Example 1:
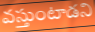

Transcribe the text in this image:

వస్తుంటాడని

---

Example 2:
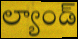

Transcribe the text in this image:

ల్యాండ్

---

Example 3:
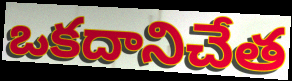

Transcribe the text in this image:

ఒకదానిచేత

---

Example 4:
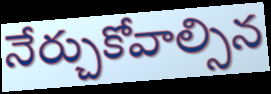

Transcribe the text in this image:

నేర్చుకోవాల్సిన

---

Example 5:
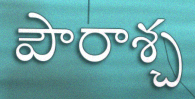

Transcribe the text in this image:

పౌరాశ్చ